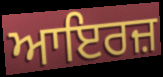
ਆਇਰਜ਼